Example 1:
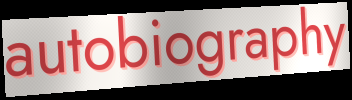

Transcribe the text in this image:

autobiography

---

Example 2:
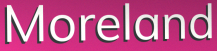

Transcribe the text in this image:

Moreland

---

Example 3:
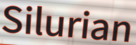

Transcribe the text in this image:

Silurian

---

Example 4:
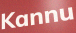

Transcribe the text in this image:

Kannu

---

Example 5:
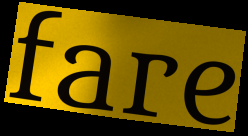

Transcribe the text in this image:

fare